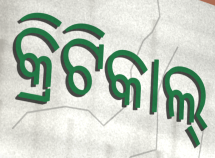
କ୍ରିଟିକାଲ୍